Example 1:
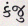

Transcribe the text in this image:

કંજુ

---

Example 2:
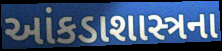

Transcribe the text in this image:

આંકડાશાસ્ત્રના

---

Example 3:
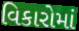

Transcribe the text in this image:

વિકારોમાં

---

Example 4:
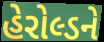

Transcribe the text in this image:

હેરોલ્ડને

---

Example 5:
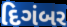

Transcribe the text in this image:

દિગંબર